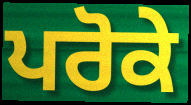
ਪਰੋਕੇ